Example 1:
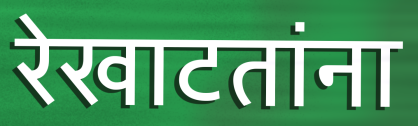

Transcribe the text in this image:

रेखाटतांना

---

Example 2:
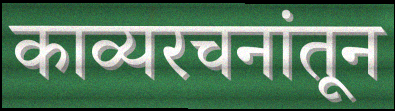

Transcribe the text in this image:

काव्यरचनांतून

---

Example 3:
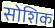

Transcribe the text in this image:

सोशिक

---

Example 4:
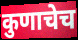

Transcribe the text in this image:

कुणाचेच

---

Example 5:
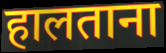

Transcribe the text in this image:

हालताना